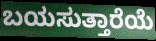
ಬಯಸುತ್ತಾರೆಯೆ